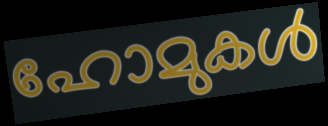
ഹോമുകൾ